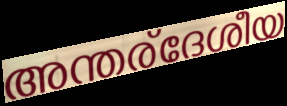
അന്തര്ദേശീയ